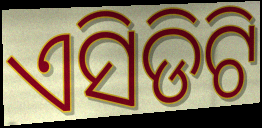
ଏସିଡିଟି